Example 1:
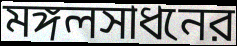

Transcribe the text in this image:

মঙ্গলসাধনের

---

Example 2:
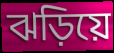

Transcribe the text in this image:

ঝড়িয়ে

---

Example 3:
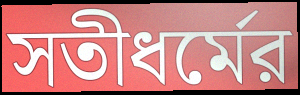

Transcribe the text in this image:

সতীধর্মের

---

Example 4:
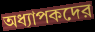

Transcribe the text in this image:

অধ্যাপকদের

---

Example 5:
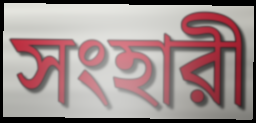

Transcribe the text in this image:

সংহারী